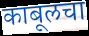
काबूलचा